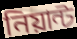
নিয়ান্ট